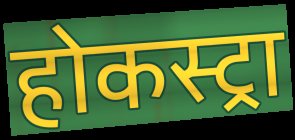
होकस्ट्रा